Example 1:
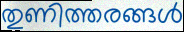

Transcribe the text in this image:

തുണിത്തരങ്ങൾ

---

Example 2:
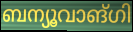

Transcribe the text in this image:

ബന്യൂവാങ്ഗി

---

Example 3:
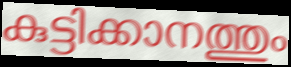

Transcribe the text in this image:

കുട്ടിക്കാനത്തും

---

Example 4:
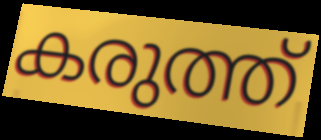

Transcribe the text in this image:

കരുത്ത്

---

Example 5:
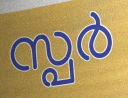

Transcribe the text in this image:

സ്പർ